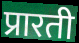
प्रारती